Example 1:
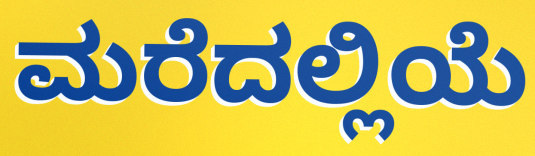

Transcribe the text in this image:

ಮರೆದಲ್ಲಿಯೆ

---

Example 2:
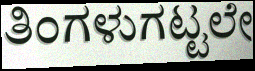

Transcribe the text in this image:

ತಿಂಗಳುಗಟ್ಟಲೇ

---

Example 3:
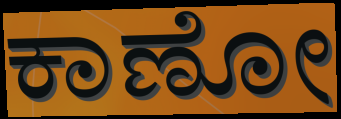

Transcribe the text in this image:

ಕಾಣೋ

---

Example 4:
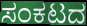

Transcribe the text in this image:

ಸಂಕಟದ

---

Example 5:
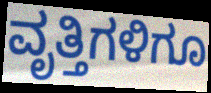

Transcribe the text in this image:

ವೃತ್ತಿಗಳಿಗೂ